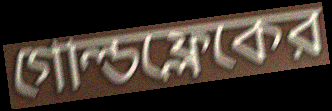
গোল্ডফ্লেকের